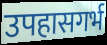
उपहासगर्भ